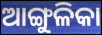
ଆଙ୍ଗୁଳିକା